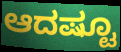
ಆದಷ್ಟೂ